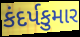
કંદર્પકુમાર